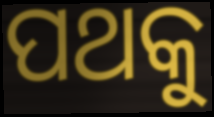
ପଥକୁ